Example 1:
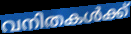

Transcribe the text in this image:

വനിതകൾക്ക്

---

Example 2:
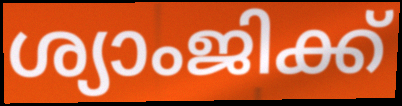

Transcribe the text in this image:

ശ്യാംജിക്ക്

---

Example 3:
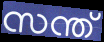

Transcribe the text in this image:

സന്ത്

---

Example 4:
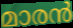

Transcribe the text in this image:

മാരൻ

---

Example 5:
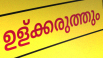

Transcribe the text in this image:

ഉള്ക്കരുത്തും